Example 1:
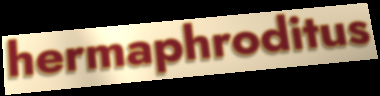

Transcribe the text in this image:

hermaphroditus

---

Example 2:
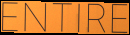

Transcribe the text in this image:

ENTIRE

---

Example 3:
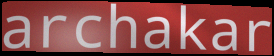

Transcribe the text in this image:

archakar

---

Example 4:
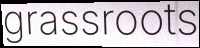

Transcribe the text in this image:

grassroots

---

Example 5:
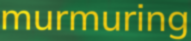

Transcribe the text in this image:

murmuring